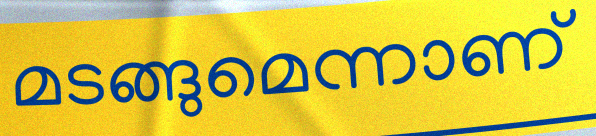
മടങ്ങുമെന്നാണ്